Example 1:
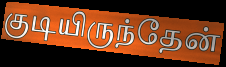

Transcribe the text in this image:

குடியிருந்தேன்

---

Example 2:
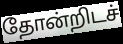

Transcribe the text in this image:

தோன்றிடச்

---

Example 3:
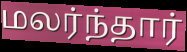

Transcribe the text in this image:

மலர்ந்தார்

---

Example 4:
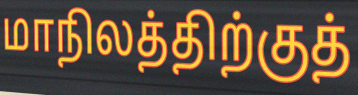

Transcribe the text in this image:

மாநிலத்திற்குத்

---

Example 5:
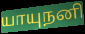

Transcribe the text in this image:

யாயுநனி